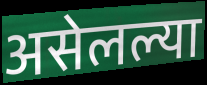
असेलल्या